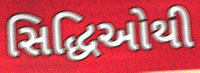
સિદ્ધિઓથી